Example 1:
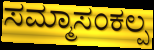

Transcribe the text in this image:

ಸಮ್ಮಾಸಂಕಲ್ಪ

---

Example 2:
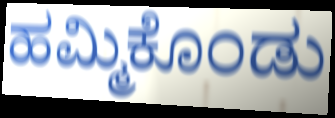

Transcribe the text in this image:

ಹಮ್ಮಿಕೊಂಡು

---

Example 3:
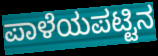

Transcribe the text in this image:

ಪಾಳೆಯಪಟ್ಟಿನ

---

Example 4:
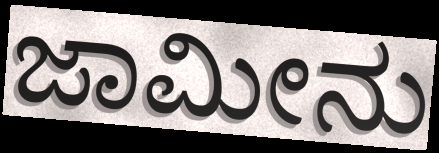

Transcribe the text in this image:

ಜಾಮೀನು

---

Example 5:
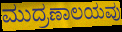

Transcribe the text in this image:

ಮುದ್ರಣಾಲಯವು